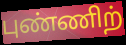
புண்ணிற்